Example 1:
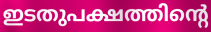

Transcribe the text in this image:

ഇടതുപക്ഷത്തിന്റെ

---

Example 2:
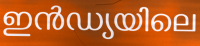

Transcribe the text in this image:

ഇൻഡ്യയിലെ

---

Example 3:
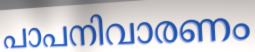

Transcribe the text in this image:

പാപനിവാരണം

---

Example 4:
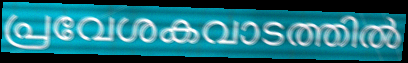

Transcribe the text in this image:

പ്രവേശകവാടത്തിൽ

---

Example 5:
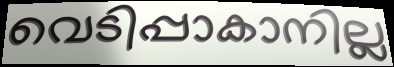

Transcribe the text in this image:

വെടിപ്പാകാനില്ല